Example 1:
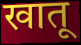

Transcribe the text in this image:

खातू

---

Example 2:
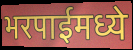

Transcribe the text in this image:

भरपाईमध्ये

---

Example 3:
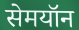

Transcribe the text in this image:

सेमयॉन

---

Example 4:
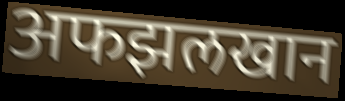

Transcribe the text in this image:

अफझलखान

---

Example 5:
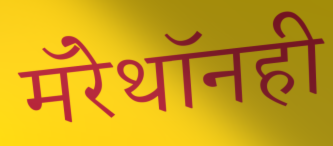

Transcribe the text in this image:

मॅरेथॉनही